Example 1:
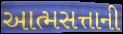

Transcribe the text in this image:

આત્મસત્તાની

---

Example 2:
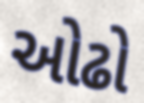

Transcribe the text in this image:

ઓઢો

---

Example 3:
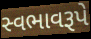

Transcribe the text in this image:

સ્વભાવરૂપે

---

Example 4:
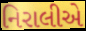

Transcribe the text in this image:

નિરાલીએ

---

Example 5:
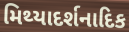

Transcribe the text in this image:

મિથ્યાદર્શનાદિક